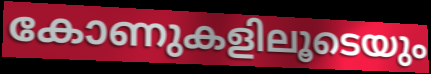
കോണുകളിലൂടെയും